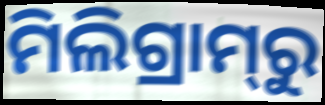
ମିଲିଗ୍ରାମ୍‌ରୁ